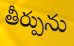
తీర్పును